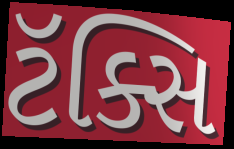
ટૅક્સિ